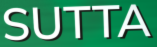
SUTTA